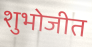
शुभोजीत